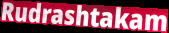
Rudrashtakam